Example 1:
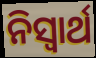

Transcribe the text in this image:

ନିସ୍ୱାର୍ଥ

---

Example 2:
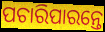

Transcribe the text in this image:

ପଚାରିପାରନ୍ତେ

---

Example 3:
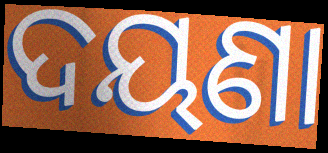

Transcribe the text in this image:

ଦୟଣା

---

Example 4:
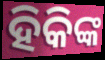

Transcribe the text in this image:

ହିକିଙ୍କ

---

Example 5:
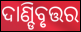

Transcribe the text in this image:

ଦାଣ୍ଡିବୃତ୍ତର